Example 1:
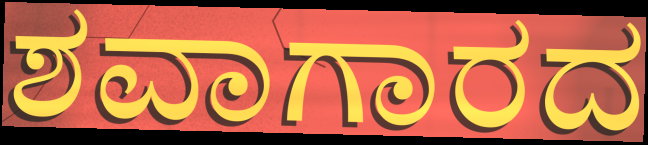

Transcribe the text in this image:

ಶವಾಗಾರದ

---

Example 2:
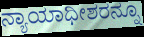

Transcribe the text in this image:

ನ್ಯಾಯಾಧೀಶರನ್ನೂ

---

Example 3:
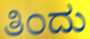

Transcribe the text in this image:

ತಿಂದು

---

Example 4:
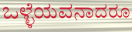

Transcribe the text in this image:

ಒಳ್ಳೆಯವನಾದರೂ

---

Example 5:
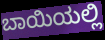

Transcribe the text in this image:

ಬಾಯಿಯಲ್ಲಿ